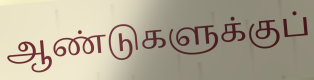
ஆண்டுகளுக்குப்